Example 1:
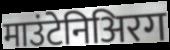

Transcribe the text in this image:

माउंटेनिअिरग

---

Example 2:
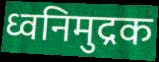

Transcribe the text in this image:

ध्वनिमुद्रक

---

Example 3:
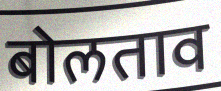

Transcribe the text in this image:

बोलताव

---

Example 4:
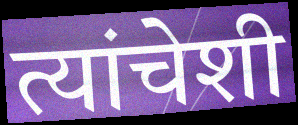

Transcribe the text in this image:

त्यांचेशी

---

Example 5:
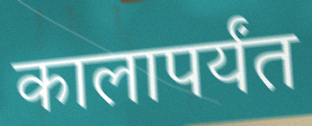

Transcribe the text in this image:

कालापर्यंत